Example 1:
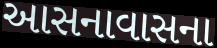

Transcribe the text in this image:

આસનાવાસના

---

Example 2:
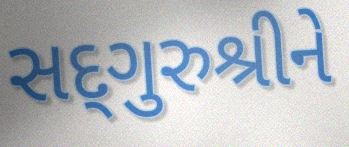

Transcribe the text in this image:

સદ્‌ગુરુશ્રીને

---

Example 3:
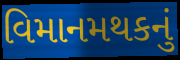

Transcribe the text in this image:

વિમાનમથકનું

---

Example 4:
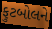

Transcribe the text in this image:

ફુટબોલને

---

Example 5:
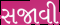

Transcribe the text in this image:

સજાવી